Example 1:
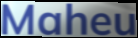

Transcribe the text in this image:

Maheu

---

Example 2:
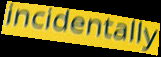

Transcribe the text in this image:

incidentally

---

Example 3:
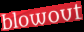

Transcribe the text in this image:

blowout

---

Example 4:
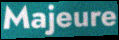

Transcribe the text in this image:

Majeure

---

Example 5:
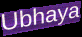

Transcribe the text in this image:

Ubhaya